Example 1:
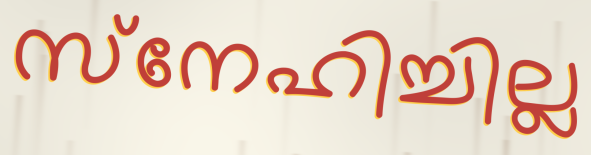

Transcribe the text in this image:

സ്‌നേഹിച്ചില്ല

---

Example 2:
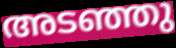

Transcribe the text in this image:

അടഞ്ഞു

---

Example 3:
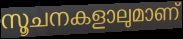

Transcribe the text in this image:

സൂചനകളാലുമാണ്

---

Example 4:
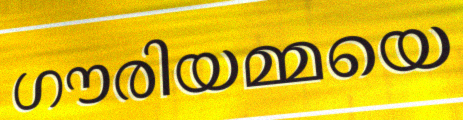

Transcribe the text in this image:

ഗൗരിയമ്മയെ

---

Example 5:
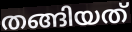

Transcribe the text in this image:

തങ്ങിയത്